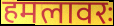
हमलावरः